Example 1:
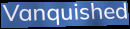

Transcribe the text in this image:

Vanquished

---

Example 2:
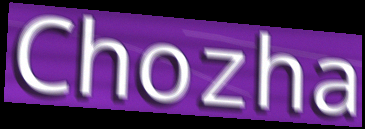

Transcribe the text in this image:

Chozha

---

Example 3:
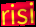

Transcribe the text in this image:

risi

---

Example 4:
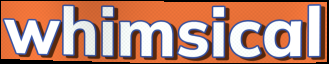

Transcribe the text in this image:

whimsical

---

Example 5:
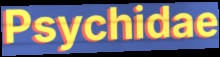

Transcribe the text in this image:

Psychidae